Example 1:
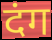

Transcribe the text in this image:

दंग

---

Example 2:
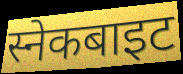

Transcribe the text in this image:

स्नेकबाइट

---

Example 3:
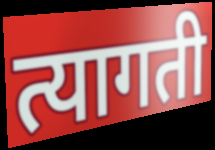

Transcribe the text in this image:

त्यागती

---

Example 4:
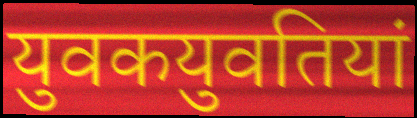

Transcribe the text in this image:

युवकयुवतियां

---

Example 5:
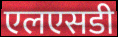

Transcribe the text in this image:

एलएसडी